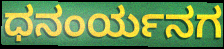
ಧನಂರ್ಯನಗ